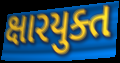
ક્ષારયુક્ત